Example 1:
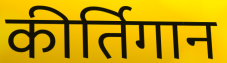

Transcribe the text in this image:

कीर्तिगान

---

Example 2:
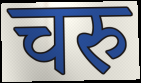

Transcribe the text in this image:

चरु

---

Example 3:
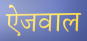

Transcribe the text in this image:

ऐजवाल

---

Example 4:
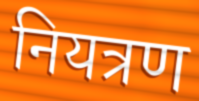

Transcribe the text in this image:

नियत्रण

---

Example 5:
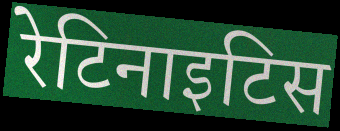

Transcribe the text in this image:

रेटिनाइटिस